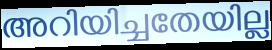
അറിയിച്ചതേയില്ല